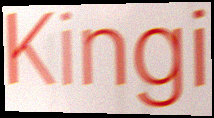
Kingi